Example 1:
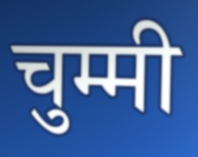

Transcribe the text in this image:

चुम्मी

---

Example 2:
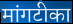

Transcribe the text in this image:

मांगटीका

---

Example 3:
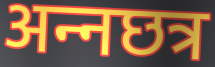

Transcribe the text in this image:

अन्नछत्र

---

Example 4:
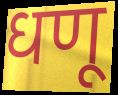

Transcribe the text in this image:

धणू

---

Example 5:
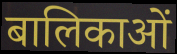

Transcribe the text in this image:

बालिकाओं